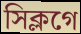
সিক্লগে